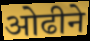
ओढीने